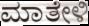
ಮಾತೇಳಿ